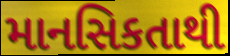
માનસિકતાથી